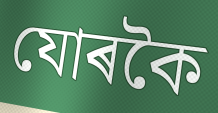
যোৰকৈ